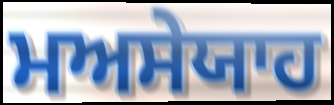
ਮਅਸੇਯਾਹ